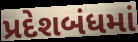
પ્રદેશબંધમાં